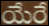
యేరే